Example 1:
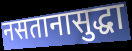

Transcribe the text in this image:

नसतानासुद्धा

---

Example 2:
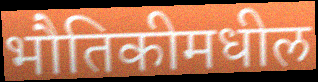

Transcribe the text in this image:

भौतिकीमधील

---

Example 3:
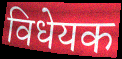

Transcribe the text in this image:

विधेयक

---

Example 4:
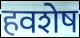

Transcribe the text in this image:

हवशेष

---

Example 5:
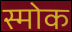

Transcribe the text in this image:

स्मोक